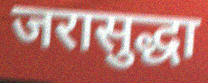
जरासुद्धा